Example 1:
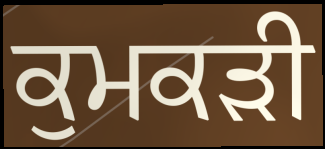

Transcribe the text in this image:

ਕੁਮਕੜੀ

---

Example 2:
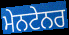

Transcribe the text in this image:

ਮੇਨਟੇਨਰ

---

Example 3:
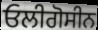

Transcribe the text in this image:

ਓਲੀਗੋਸੀਨ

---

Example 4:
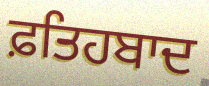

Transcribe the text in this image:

ਫ਼ਤਿਹਬਾਦ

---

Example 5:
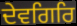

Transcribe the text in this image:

ਦੇਵਗਿਰਿ